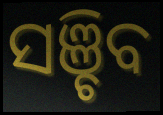
ସଞ୍ଚିବ